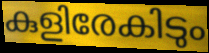
കുളിരേകിടും